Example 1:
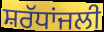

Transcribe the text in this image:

ਸ਼ਰੱਧਾਂਜਲੀ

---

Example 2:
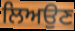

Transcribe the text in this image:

ਲਿਅਉਣ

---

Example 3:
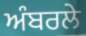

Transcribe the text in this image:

ਅੰਬਰਲੇ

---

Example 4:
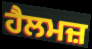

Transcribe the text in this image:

ਹੈਲਮਜ਼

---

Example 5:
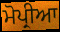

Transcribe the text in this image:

ਮੋਪ੍ਰੀਆ